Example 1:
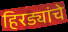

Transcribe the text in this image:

हिरड्यांचे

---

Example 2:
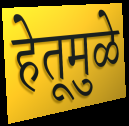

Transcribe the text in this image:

हेतूमुळे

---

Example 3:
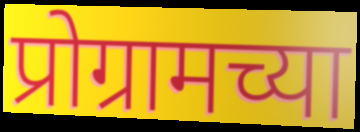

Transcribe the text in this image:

प्रोग्रामच्या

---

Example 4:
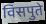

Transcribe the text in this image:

विसपुते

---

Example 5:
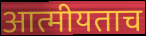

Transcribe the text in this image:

आत्मीयताच